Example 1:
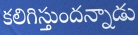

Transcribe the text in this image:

కలిగిస్తుందన్నాడు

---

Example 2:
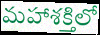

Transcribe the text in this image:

మహాశక్తిలో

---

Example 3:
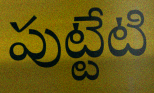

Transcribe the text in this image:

పుట్టేటి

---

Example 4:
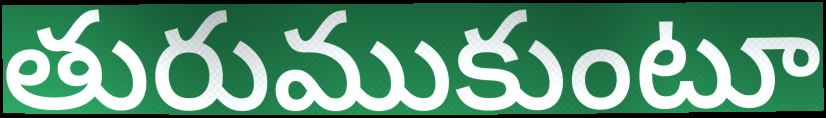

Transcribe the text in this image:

తురుముకుంటూ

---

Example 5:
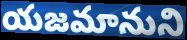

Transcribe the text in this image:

యజమానుని